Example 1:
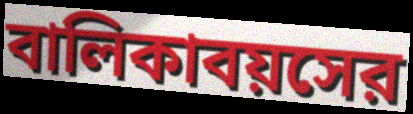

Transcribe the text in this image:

বালিকাবয়সের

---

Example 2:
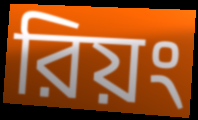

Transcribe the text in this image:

রিয়ং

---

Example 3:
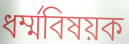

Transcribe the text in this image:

ধর্ম্মবিষয়ক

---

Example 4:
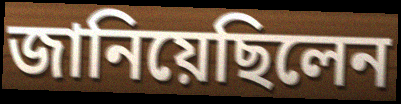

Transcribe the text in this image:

জানিয়েছিলেন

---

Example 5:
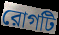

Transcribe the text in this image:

রোগটি